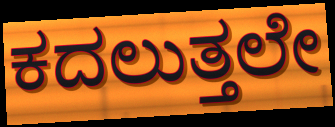
ಕದಲುತ್ತಲೇ